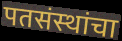
पतसंस्थांचा